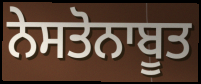
ਨੇਸਤੋਨਾਬੂਤ